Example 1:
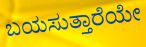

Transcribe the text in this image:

ಬಯಸುತ್ತಾರೆಯೇ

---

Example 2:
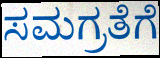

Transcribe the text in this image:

ಸಮಗ್ರತೆಗೆ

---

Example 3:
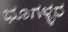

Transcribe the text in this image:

ಭೂಗಳ್ಳರ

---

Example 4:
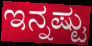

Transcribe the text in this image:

ಇನ್ನಷ್ಟು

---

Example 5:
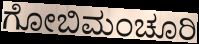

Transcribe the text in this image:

ಗೋಬಿಮಂಚೂರಿ